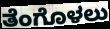
ತೆಂಗೊಳಲು